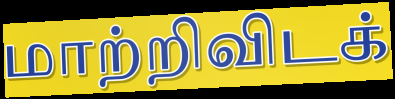
மாற்றிவிடக்